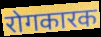
रोगकारक